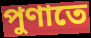
পুণাতে